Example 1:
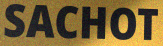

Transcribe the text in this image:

SACHOT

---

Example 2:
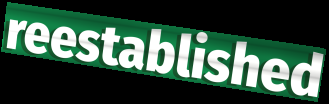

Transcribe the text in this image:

reestablished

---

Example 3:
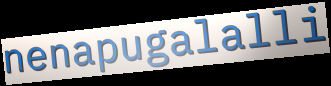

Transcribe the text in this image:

nenapugalalli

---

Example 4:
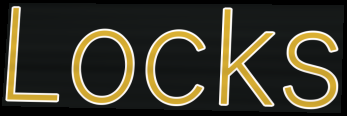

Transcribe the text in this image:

Locks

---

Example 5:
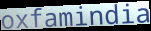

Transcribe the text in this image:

oxfamindia